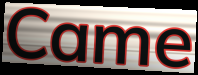
Came